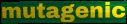
mutagenic